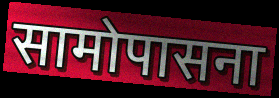
सामोपासना